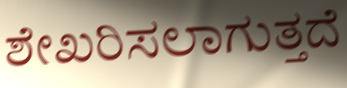
ಶೇಖರಿಸಲಾಗುತ್ತದೆ